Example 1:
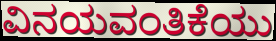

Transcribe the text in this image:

ವಿನಯವಂತಿಕೆಯು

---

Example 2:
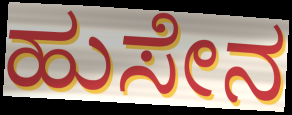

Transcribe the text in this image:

ಹುಸೇನ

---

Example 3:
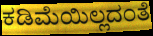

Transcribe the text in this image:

ಕಡಿಮೆಯಿಲ್ಲದಂತೆ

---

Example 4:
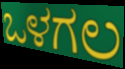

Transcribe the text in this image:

ಒಳಗಲ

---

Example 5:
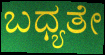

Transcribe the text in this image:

ಬಧ್ಯತೇ